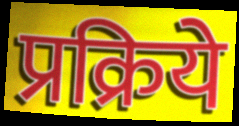
प्रक्रिये